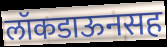
लॉकडाऊनसह